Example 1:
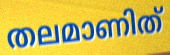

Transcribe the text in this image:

തലമാണിത്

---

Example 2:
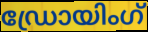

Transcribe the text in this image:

ഡ്രോയിംഗ്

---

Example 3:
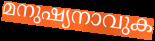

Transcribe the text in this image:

മനുഷ്യനാവുക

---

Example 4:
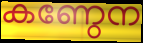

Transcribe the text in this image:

കണ്ഠേന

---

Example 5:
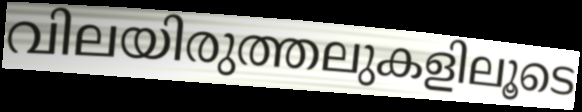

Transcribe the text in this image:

വിലയിരുത്തലുകളിലൂടെ